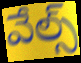
వేల్స్